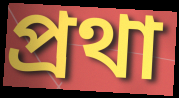
প্রথা